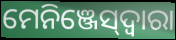
ମେନିଞ୍ଜେସ୍‌ଦ୍ୱାରା